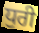
ਧੁਰੀ